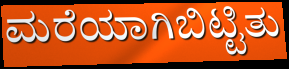
ಮರೆಯಾಗಿಬಿಟ್ಟಿತು